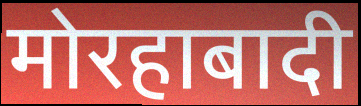
मोरहाबादी